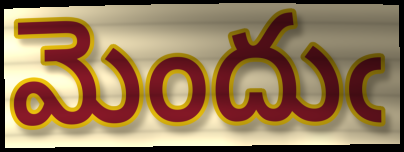
మెందుఁ